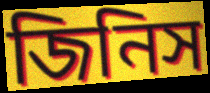
জিনিস